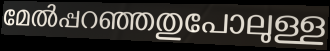
മേൽപ്പറഞ്ഞതുപോലുള്ള